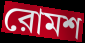
রোমশ